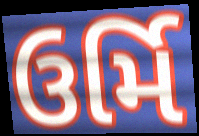
ઉર્મિ